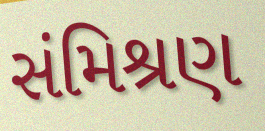
સંમિશ્રણ